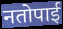
नतोपाई